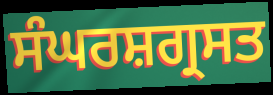
ਸੰਘਰਸ਼ਗ੍ਰਸਤ